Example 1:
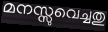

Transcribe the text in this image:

മനസ്സുവെച്ചതു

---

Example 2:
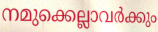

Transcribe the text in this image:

നമുക്കെല്ലാവർക്കും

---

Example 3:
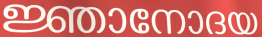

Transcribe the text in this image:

ജ്ഞാനോദയ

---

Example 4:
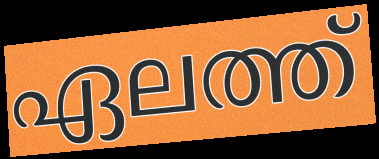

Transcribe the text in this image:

ഏലത്ത്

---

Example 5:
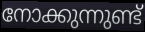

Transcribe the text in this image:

നോക്കുന്നുണ്ട്